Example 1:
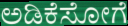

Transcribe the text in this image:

ಅಡಿಕೆಸೋಗೆ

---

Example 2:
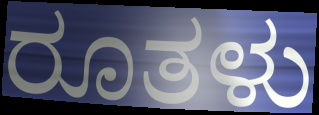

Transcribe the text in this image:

ರೂತಳು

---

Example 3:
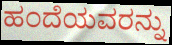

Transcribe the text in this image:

ಹಂದೆಯವರನ್ನು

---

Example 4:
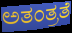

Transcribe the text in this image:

ಅತಂತ್ರತೆ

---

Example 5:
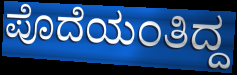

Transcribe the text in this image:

ಪೊದೆಯಂತಿದ್ದ